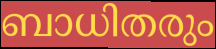
ബാധിതരും